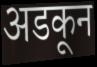
अडकून